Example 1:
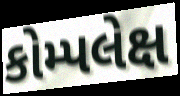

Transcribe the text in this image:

કોમ્પલેક્ષ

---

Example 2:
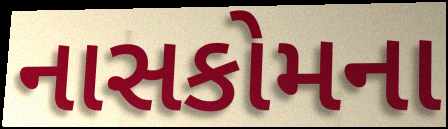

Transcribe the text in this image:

નાસકોમના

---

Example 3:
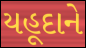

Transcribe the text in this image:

યહૂદાને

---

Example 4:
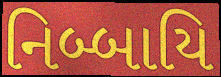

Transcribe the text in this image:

નિબ્બાયિ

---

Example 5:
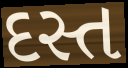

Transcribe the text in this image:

દસ્ત